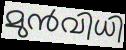
മുൻവിധി